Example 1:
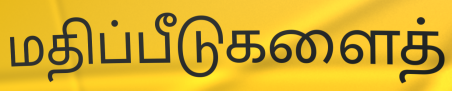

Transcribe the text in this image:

மதிப்பீடுகளைத்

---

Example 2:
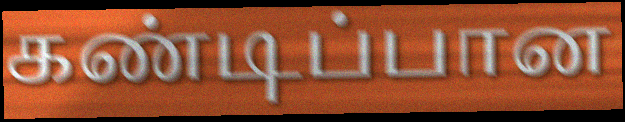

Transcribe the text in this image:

கண்டிப்பான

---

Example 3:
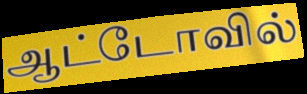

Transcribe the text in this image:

ஆட்டோவில்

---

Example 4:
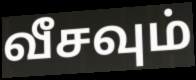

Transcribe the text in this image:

வீசவும்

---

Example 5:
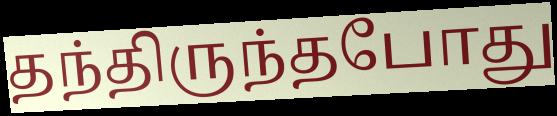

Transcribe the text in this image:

தந்திருந்தபோது